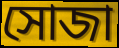
সোজা